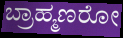
ಬ್ರಾಹ್ಮಣರೋ